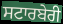
ਸਟਾਰਬੇਰੀ